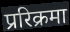
प्ररिक्रमा